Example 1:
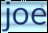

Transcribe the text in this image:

joe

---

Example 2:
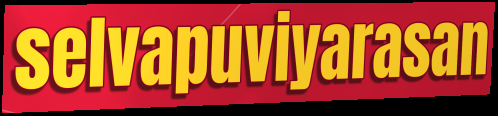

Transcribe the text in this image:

selvapuviyarasan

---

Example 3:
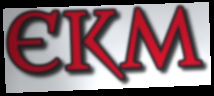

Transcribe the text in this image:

EKM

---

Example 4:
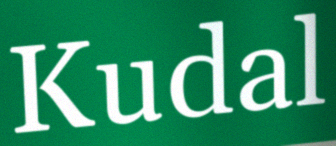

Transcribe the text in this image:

Kudal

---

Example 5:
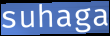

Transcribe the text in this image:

suhaga